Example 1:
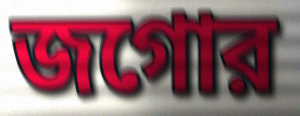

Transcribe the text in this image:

জগোর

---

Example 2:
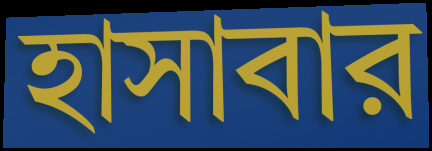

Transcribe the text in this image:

হাসাবার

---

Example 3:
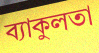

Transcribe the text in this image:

ব্যাকুলতা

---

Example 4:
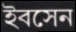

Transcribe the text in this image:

ইবসেন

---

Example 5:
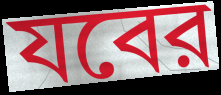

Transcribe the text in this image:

যবের